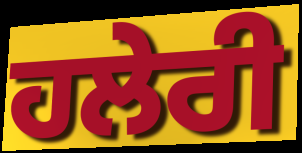
ਹਲੇਰੀ